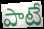
పాటే